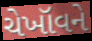
ચેખૉવને